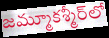
జమ్మూకశ్మీర్‌లో